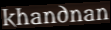
khandnan